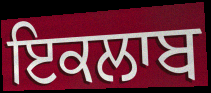
ਇਕਲਾਬ